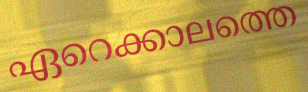
ഏറെക്കാലത്തെ